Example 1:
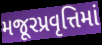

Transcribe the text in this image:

મજૂરપ્રવૃત્તિમાં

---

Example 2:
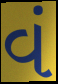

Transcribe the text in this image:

વં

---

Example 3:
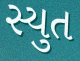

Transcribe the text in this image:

સ્યુત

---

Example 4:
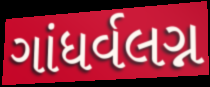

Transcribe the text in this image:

ગાંધર્વલગ્ન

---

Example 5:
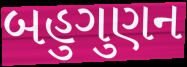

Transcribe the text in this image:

બહુગુણન